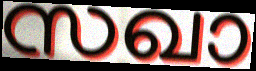
സഖാ